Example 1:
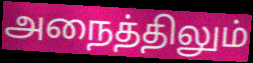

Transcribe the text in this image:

அநைத்திலும்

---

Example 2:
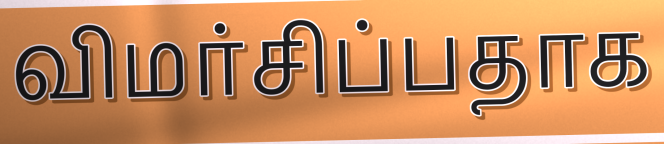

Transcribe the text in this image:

விமர்சிப்பதாக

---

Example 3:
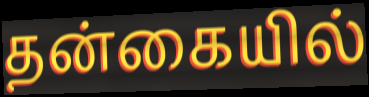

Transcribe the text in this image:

தன்கையில்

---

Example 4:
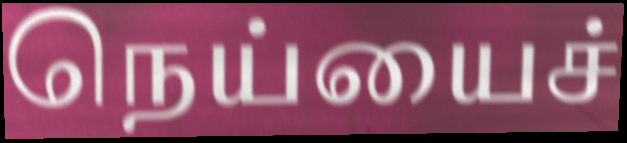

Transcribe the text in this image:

நெய்யைச்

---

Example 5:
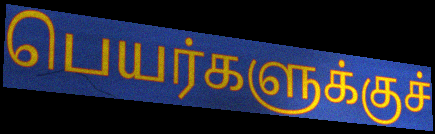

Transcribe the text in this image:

பெயர்களுக்குச்